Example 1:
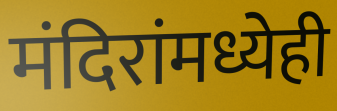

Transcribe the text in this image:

मंदिरांमध्येही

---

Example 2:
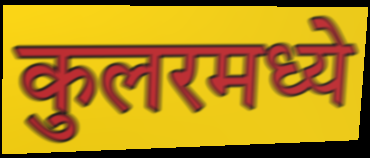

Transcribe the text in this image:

कुलरमध्ये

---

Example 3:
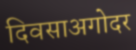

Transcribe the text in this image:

दिवसाअगोदर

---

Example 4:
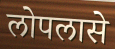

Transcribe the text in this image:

लोपलासे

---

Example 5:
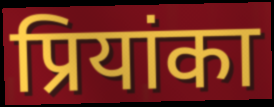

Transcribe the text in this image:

प्रियांका